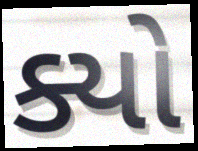
ક્યો